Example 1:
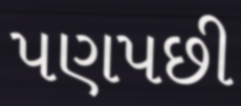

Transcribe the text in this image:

પણપછી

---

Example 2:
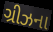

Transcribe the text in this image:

ગ્રીઝના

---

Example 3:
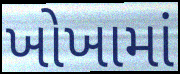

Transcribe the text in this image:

ખોખામાં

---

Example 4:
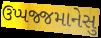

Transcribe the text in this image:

ઉપ્પજ્જમાનેસુ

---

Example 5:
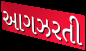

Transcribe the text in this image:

આગઝરતી